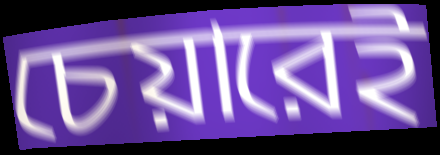
চেয়ারেই